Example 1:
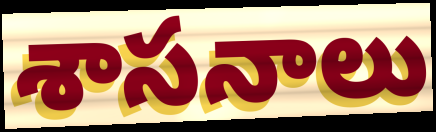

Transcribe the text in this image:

శాసనాలు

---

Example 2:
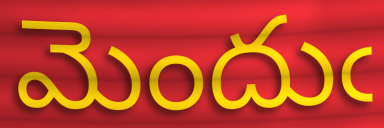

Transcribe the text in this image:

మెందుఁ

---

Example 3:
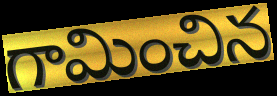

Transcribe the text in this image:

గామించిన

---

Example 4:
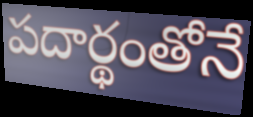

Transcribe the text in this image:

పదార్థంతోనే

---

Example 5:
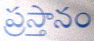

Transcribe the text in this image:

ప్రస్తానం